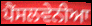
ਪੈਂਸਲਵੇਨੀਆ